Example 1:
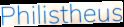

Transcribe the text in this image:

Philistheus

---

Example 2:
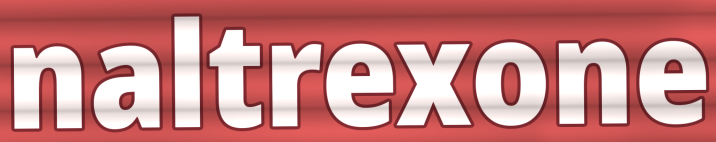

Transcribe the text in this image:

naltrexone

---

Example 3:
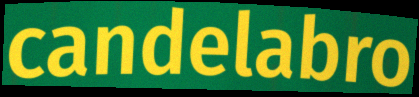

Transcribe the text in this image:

candelabro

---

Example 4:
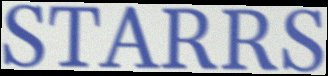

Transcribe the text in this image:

STARRS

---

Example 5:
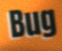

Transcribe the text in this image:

Bug